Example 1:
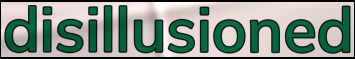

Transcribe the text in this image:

disillusioned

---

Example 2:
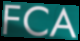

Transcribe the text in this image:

FCA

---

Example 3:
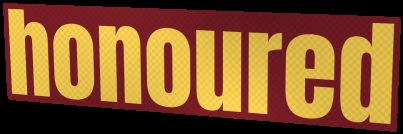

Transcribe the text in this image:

honoured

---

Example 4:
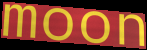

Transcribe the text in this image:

moon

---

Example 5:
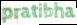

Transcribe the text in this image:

pratibha